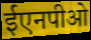
ईएनपीओ